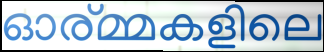
ഓര്മ്മകളിലെ